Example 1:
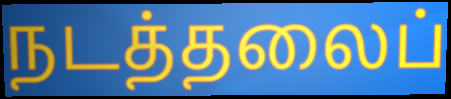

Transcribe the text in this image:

நடத்தலைப்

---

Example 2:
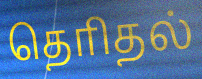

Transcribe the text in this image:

தெரிதல்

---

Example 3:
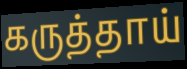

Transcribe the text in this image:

கருத்தாய்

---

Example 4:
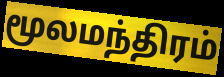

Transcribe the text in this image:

மூலமந்திரம்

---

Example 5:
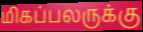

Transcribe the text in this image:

மிகப்பலருக்கு